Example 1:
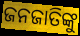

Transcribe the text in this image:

ଜନଜାତିଙ୍କୁ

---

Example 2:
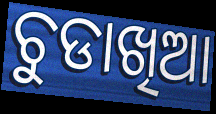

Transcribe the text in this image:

ଚୁଡାଖିଆ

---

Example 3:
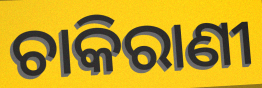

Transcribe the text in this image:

ଚାକିରାଣୀ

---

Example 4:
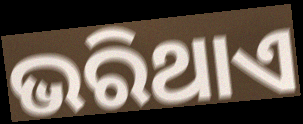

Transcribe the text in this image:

ଭରିଥାଏ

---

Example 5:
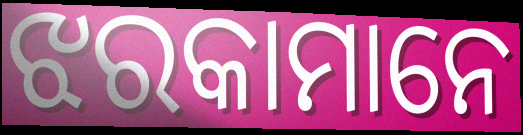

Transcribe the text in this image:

ଝରକାମାନେ